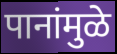
पानांमुळे